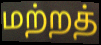
மற்றத்